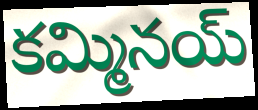
కమ్మినయ్